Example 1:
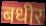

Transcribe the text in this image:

बधीर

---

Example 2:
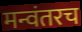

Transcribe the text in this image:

मन्वंतरच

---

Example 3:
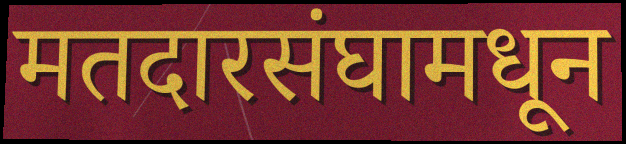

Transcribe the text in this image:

मतदारसंघामधून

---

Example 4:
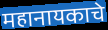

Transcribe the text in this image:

महानायकाचे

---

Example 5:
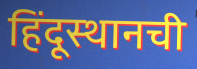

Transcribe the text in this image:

हिंदूस्थानची